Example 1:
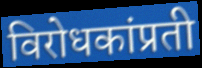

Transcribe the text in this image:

विरोधकांप्रती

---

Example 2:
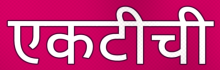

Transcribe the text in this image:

एकटीची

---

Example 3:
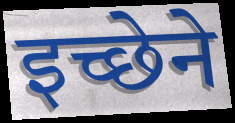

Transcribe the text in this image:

इच्छेने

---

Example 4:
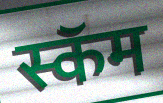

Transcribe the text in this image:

स्कॅम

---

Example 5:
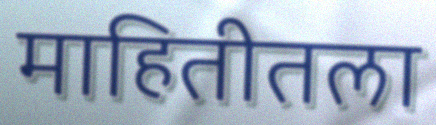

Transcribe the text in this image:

माहितीतला